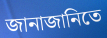
জানাজানিতে